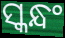
ସ୍କନ୍ଧଂ